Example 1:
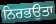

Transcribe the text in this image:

ਨਿਰਭਉਤਾ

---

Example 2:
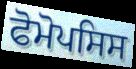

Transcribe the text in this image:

ਫੋਮੋਪਸਿਸ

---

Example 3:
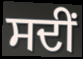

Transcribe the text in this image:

ਸਦੀਂ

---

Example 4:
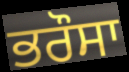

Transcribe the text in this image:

ਭਰੌਸਾ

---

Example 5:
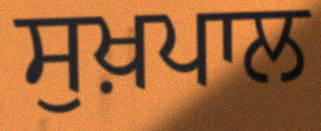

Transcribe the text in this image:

ਸੁਖ਼ਪਾਲ